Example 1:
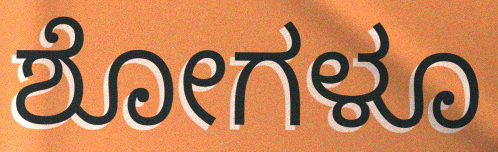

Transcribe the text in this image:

ಶೋಗಳೂ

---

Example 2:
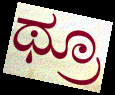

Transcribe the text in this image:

ಥ್ರೂ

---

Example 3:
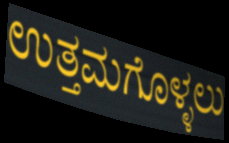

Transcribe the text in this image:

ಉತ್ತಮಗೊಳ್ಳಲು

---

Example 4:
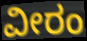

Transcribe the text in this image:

ವೀರಂ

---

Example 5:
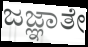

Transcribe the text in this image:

ಜಜ್ಞಾತೇ